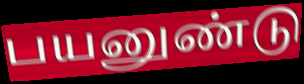
பயனுண்டு